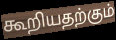
கூறியதற்கும்